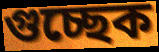
গুচ্ছেক